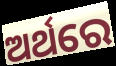
ଅର୍ଥରେ